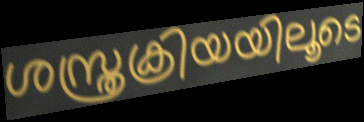
ശസ്ത്രക്രിയയിലൂടെ